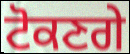
ਟੋਕਣਗੇ